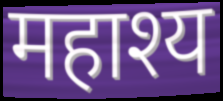
महाश्य